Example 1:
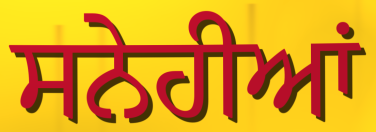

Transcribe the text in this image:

ਸਨੇਹੀਆਂ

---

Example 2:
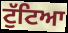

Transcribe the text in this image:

ਟੁੱਟਿਆ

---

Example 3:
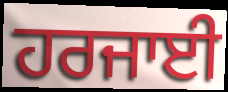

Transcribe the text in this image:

ਹਰਜਾਈ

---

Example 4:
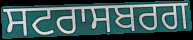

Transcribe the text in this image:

ਸਟਰਾਸਬਰਗ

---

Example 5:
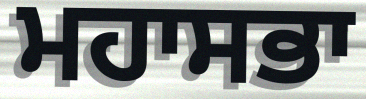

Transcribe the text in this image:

ਮਹਾਸਭਾ